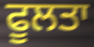
ਫੂਲਤਾ